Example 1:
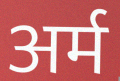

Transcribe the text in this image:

अर्म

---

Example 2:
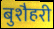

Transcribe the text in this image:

बुशैहरी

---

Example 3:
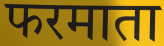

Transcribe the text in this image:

फरमाता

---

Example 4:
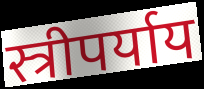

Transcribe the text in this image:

स्त्रीपर्याय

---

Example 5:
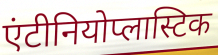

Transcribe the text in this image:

एंटीनियोप्लास्टिक